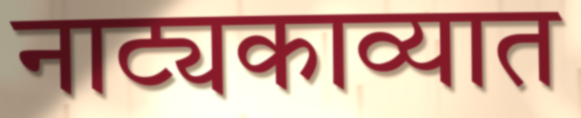
नाट्यकाव्यात